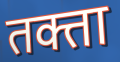
तक्ता